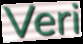
Veri